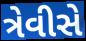
ત્રેવીસે